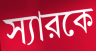
স্যারকে